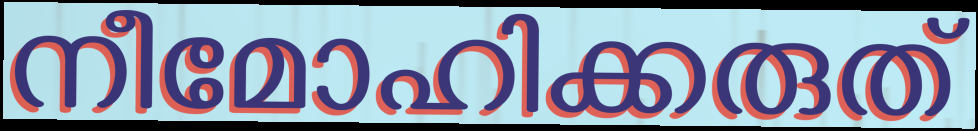
നീമോഹിക്കരുത്